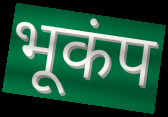
भूकंप